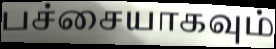
பச்சையாகவும்